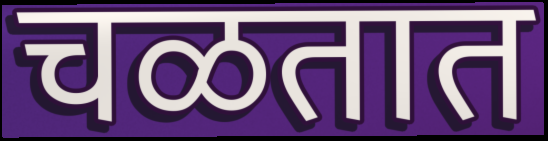
चळतात